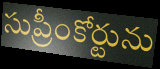
సుప్రీంకోర్టును